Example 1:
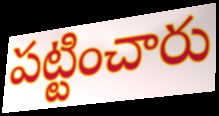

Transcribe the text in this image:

పట్టించారు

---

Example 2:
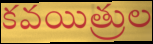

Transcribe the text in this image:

కవయిత్రుల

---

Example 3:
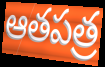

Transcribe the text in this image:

ఆతపత్ర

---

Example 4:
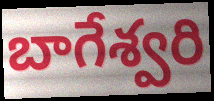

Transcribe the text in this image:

బాగేశ్వరి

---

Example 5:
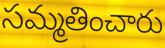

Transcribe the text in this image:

సమ్మతించారు